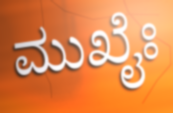
ಮುಖೈಃ